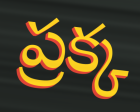
ప్రక్క